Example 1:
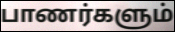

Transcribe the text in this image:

பாணர்களும்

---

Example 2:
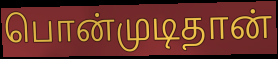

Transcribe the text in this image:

பொன்முடிதான்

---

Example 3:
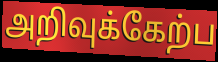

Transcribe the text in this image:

அறிவுக்கேற்ப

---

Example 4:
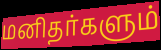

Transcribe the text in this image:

மனிதர்களும்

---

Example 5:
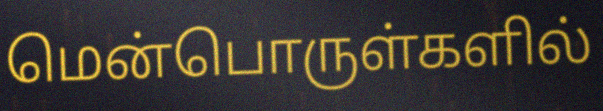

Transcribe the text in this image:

மென்பொருள்களில்